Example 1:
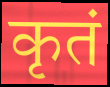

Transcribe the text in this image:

कृतं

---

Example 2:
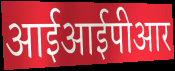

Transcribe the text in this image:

आईआईपीआर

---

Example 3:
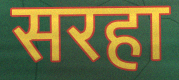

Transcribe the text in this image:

सरहा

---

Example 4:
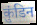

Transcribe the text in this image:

कुंडिन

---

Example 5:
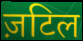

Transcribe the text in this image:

ज़टिल